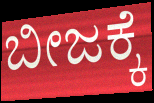
ಬೀಜಕ್ಕೆ